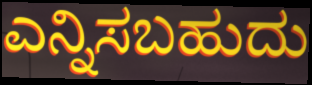
ಎನ್ನಿಸಬಹುದು